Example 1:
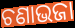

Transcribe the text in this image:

ଚଣାଭଜା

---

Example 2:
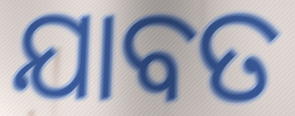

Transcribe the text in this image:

ଯାବତ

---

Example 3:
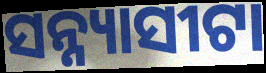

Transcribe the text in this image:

ସନ୍ନ୍ୟାସୀଟା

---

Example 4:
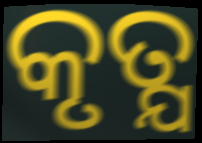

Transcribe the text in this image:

କୃତ୍ଯ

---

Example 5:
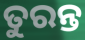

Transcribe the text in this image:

ତୁରନ୍ତ